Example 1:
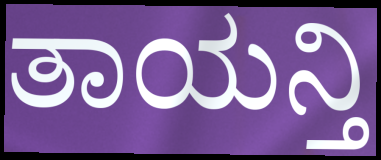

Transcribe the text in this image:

ತಾಯನ್ತಿ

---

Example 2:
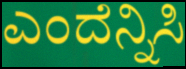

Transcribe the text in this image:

ಎಂದೆನ್ನಿಸಿ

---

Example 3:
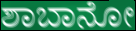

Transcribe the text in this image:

ಶಾಬಾನೋ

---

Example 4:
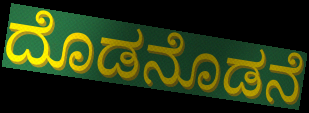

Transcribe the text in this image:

ದೊಡನೊಡನೆ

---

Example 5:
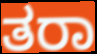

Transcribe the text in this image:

ತರಾ